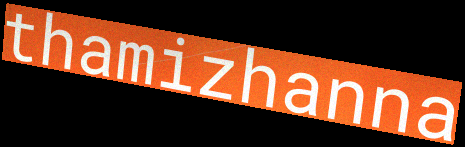
thamizhanna